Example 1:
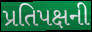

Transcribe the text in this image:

પ્રતિપક્ષની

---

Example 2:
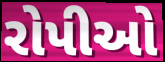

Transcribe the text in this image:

રોપીઓ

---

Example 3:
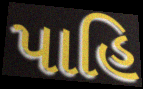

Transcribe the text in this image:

પાહિ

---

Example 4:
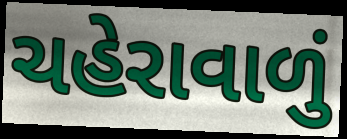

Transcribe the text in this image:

ચહેરાવાળું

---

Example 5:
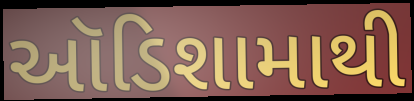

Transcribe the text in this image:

ઑડિશામાથી